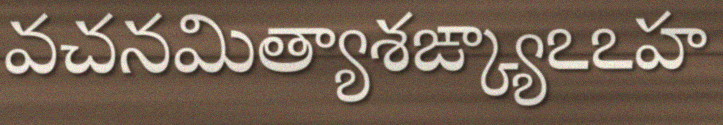
వచనమిత్యాశఙ్క్యాఽఽహ